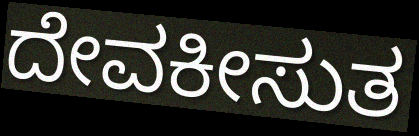
ದೇವಕೀಸುತ